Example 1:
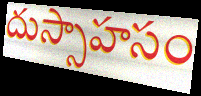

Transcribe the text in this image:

దుస్సాహసం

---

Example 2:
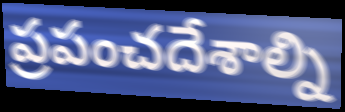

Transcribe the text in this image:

ప్రపంచదేశాల్ని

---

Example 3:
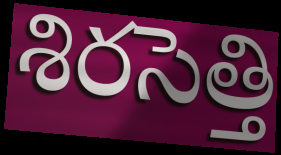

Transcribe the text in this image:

శిరసెత్తి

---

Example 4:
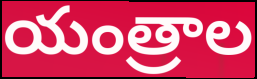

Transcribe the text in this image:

యంత్రాల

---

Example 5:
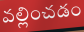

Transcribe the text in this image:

వల్లించడం